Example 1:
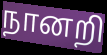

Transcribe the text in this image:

நானறி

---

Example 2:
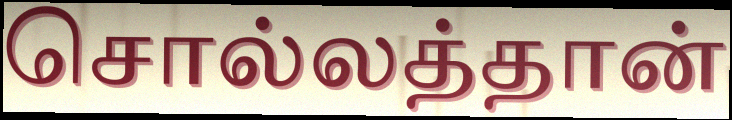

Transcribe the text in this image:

சொல்லத்தான்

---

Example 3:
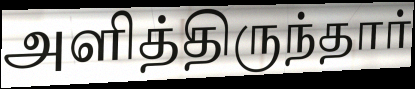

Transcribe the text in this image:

அளித்திருந்தார்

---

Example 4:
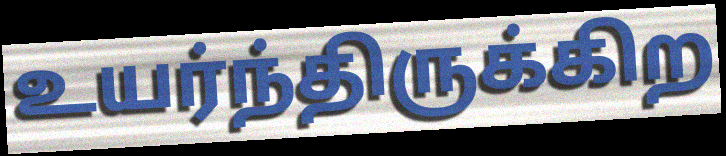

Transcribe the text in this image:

உயர்ந்திருக்கிற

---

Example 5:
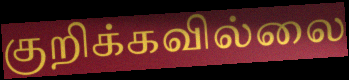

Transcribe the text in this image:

குறிக்கவில்லை